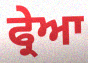
ਫ੍ਰੇਆ